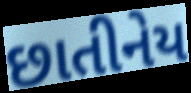
છાતીનેય